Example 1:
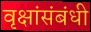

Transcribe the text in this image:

वृक्षांसंबंधी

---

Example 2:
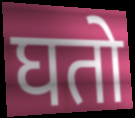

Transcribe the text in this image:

घतो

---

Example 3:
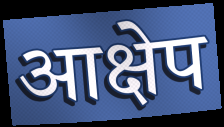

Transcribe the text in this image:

आक्षेप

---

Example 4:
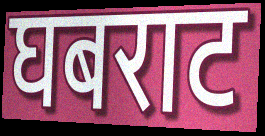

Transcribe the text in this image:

घबराट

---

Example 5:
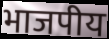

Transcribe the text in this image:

भाजपीय